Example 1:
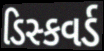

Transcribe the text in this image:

ડિસ્કવર્ડ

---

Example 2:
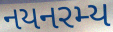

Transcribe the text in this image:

નયનરમ્ય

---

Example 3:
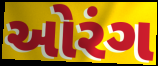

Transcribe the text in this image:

ઓરંગ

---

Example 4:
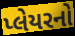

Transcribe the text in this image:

પ્લેયરનો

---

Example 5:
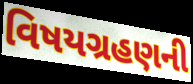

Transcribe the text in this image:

વિષયગ્રહણની